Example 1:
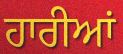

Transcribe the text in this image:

ਹਾਰੀਆਂ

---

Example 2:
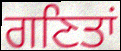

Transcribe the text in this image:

ਗਣਿਤਾਂ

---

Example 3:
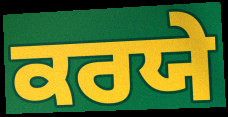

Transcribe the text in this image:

ਕਰਯੇ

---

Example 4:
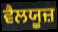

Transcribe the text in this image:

ਵੈਲਯੂਜ਼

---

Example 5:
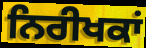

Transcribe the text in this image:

ਨਿਰੀਖਕਾਂ